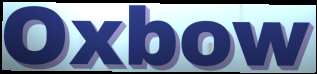
Oxbow